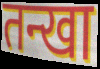
तन्खा